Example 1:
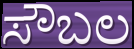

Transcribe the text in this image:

ಸೌಬಲ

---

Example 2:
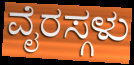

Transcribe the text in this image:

ವೈರಸ್ಗಳು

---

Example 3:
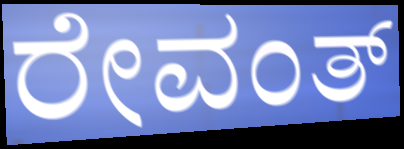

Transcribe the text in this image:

ರೇವಂತ್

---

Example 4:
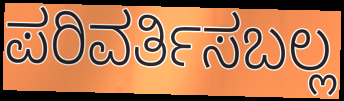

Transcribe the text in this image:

ಪರಿವರ್ತಿಸಬಲ್ಲ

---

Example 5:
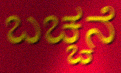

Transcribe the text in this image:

ಬಚ್ಚನೆ